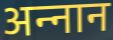
अन्नान